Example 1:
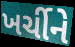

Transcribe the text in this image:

ખર્ચીને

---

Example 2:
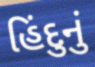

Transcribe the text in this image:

હિંદુનું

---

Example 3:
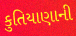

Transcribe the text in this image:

કુતિયાણાની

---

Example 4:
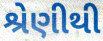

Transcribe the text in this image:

શ્રેણીથી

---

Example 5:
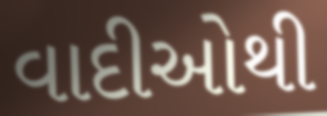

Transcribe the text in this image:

વાદીઓથી